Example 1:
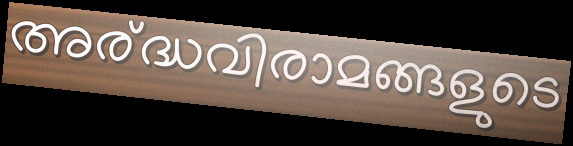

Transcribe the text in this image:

അര്ദ്ധവിരാമങ്ങളുടെ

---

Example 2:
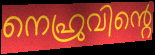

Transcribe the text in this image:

നെഹ്രുവിന്റെ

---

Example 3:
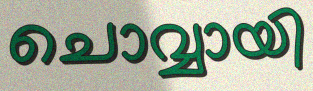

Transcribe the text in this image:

ചൊവ്വായി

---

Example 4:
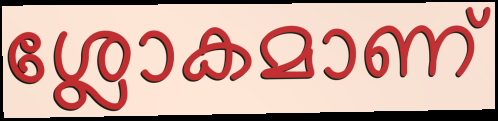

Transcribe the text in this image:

ശ്ലോകമാണ്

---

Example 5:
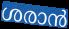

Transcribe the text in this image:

ശരാൻ